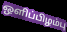
ஒளிப்பிழம்பு